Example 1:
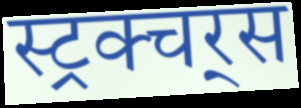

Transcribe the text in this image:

स्ट्रक्चर्स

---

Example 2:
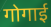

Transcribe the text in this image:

गोगाई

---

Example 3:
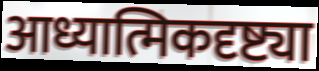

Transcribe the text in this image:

आध्यात्मिकदृष्ट्या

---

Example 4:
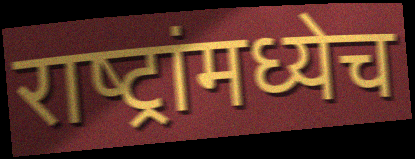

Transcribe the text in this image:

राष्ट्रांमध्येच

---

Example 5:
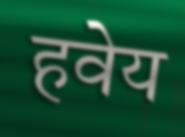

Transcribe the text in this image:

हवेय